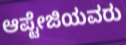
ಆಪ್ಟೇಜಿಯವರು